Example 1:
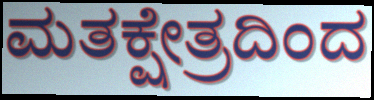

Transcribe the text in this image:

ಮತಕ್ಷೇತ್ರದಿಂದ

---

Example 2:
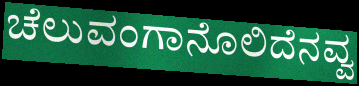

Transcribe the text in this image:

ಚೆಲುವಂಗಾನೊಲಿದೆನವ್ವ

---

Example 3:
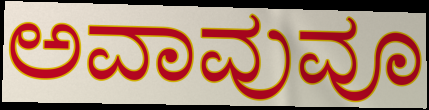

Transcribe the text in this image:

ಅವಾವುವೂ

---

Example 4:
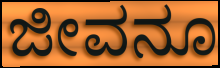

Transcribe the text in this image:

ಜೀವನೂ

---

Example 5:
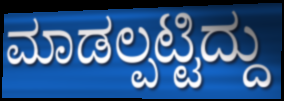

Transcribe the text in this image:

ಮಾಡಲ್ಪಟ್ಟಿದ್ದು